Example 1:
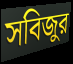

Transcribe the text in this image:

সবিজুর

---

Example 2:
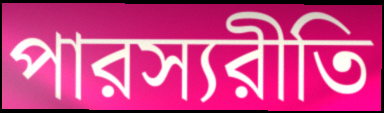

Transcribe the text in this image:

পারস্যরীতি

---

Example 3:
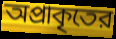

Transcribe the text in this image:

অপ্রাকৃতের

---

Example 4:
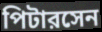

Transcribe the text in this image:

পিটারসেন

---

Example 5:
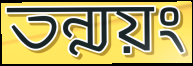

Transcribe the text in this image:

তন্ময়ং